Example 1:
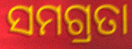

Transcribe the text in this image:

ସମଗ୍ରତା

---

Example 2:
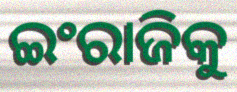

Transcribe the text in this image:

ଇଂରାଜିକୁ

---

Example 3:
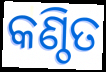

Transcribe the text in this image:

କଣ୍ଠିତ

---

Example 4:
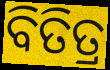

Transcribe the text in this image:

ବିତିତ୍ର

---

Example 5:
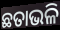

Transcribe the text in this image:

ଛତାଭଳି